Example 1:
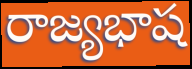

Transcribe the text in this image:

రాజ్యభాష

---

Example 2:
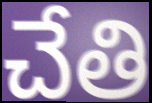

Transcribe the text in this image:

చేతి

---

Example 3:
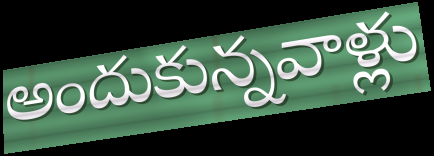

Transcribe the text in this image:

అందుకున్నవాళ్లు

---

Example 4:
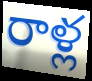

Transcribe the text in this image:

రాళ్ల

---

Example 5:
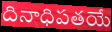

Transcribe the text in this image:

దినాధిపతయే